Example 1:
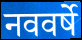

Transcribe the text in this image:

नववर्षे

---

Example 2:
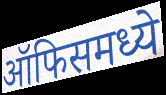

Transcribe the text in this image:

ऑफिसमध्ये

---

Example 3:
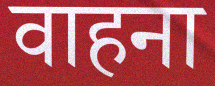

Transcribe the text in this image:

वाहना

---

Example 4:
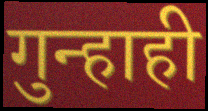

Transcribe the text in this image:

गुन्हाही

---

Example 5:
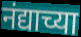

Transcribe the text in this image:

नंद्याच्या